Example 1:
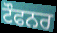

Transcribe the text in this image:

ਟੌਫਨਰ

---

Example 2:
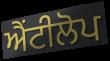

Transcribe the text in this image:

ਐਂਟੀਲੋਪ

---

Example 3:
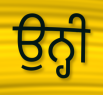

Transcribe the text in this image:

ਉਨ੍ਹੀ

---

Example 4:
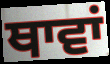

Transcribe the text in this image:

ਥਾਵਾਂ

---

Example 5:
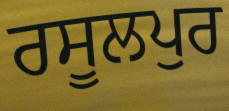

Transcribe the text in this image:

ਰਸੂਲਪੁਰ